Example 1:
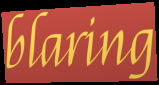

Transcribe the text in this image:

blaring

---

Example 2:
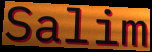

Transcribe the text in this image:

Salim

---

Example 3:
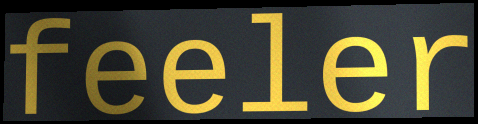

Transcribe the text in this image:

feeler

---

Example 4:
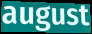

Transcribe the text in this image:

august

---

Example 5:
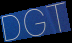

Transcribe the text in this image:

DGT